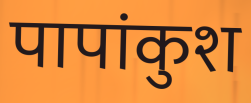
पापांकुश